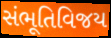
સંભૂતિવિજય